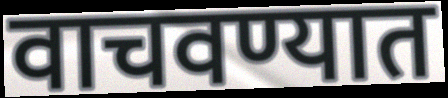
वाचवण्यात